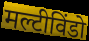
मल्टीविंडो